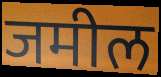
जमील